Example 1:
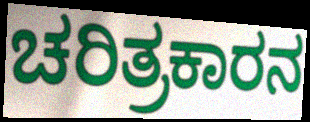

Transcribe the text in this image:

ಚರಿತ್ರಕಾರನ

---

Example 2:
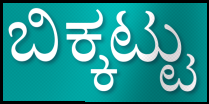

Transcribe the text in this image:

ಬಿಕ್ಕಟ್ಟು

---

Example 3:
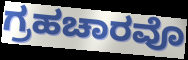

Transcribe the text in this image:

ಗ್ರಹಚಾರವೊ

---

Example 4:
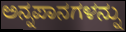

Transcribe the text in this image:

ಅನ್ನಪಾನಗಳನ್ನು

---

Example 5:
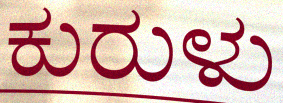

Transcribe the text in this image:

ಕುರುಳು